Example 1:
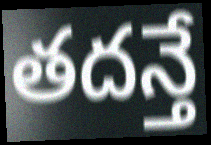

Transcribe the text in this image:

తదన్తే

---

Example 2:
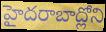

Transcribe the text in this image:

హైదరాబాద్లోని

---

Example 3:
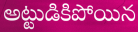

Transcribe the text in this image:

అట్టుడికిపోయిన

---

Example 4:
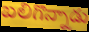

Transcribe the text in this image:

బలిగొన్నాడు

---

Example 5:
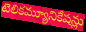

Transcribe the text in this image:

టెలికమ్యూనికేషన్లు